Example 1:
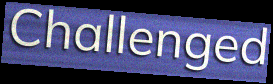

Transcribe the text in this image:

Challenged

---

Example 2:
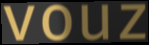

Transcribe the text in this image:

vouz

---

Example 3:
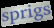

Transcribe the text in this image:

sprigs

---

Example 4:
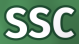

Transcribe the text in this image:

ssc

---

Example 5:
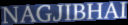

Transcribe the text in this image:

NAGJIBHAI